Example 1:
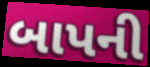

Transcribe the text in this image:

બાપની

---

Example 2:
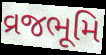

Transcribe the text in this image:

વ્રજભૂમિ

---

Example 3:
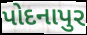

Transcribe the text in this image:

પોદનાપુર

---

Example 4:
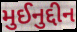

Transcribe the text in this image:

મુઈનુદ્દીન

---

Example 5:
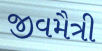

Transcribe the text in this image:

જીવમૈત્રી